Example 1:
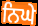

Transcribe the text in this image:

ਨਿਘੇ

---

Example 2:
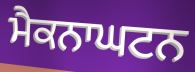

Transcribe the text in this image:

ਮੈਕਨਾਘਟਨ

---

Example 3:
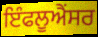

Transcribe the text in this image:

ਇੰਫਲੂਐਂਸਰ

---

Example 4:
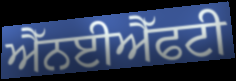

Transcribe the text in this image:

ਐੱਨਈਐੱਫਟੀ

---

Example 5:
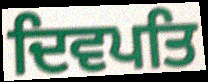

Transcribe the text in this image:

ਦਿਵਪਤਿ